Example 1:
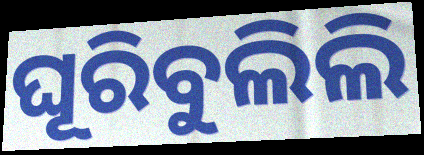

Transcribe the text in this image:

ଘୂରିବୁଲିଲି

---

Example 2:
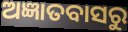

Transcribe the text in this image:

ଅଜ୍ଞାତବାସରୁ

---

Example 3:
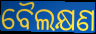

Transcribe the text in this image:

ବୈଲକ୍ଷଣ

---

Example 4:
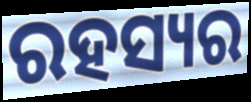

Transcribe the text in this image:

ରହସ୍ୟର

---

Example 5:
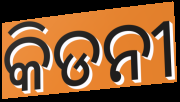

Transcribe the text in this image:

କିଡନୀ